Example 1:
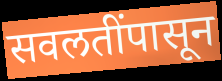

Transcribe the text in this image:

सवलतींपासून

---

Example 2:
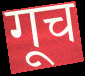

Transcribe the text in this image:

गूच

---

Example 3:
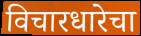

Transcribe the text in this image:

विचारधारेचा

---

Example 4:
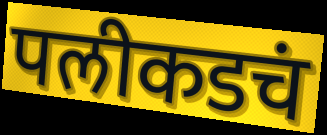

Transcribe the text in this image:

पलीकडचं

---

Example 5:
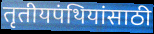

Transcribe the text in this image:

तृतीयपंथियांसाठी